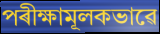
পৰীক্ষামূলকভাৱে